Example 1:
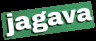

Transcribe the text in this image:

jagava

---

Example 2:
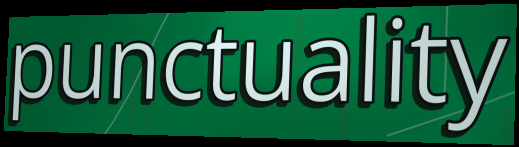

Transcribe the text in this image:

punctuality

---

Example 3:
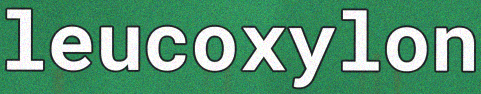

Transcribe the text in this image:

leucoxylon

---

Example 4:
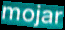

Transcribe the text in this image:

mojar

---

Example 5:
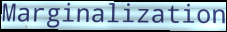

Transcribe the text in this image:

Marginalization